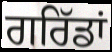
ਗਰਿੱਡਾਂ